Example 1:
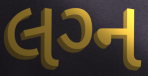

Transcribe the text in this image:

લગ્‍ન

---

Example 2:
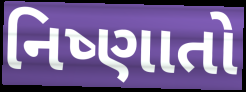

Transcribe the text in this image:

નિષ્ણાતો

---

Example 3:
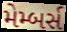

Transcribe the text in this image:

મેમ્બર્સ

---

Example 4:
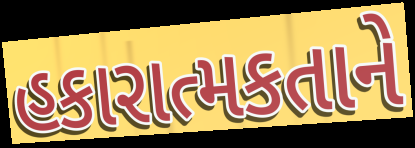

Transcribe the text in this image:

હકારાત્મકતાને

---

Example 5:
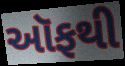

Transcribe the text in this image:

ઑફથી